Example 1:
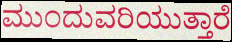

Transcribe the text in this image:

ಮುಂದುವರಿಯುತ್ತಾರೆ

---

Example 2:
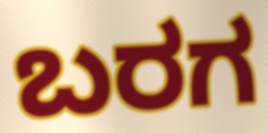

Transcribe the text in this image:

ಬರಗ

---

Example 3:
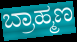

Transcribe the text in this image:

ಬ್ರಾಹ್ಮಣ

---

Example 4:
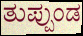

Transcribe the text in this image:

ತುಪ್ಪುಂಡ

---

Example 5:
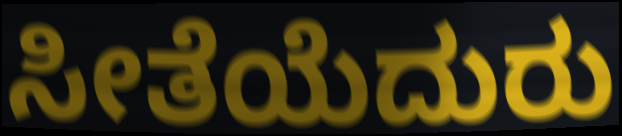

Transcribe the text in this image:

ಸೀತೆಯೆದುರು